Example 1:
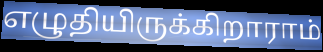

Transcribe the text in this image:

எழுதியிருக்கிறாராம்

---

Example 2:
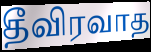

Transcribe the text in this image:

தீவிரவாத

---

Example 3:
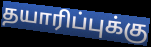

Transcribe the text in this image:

தயாரிப்புக்கு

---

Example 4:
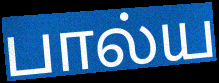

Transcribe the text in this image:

பால்ய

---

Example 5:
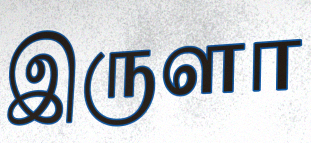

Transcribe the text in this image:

இருளா